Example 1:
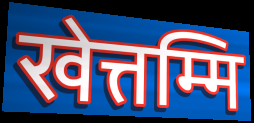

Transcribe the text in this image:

खेत्तम्मि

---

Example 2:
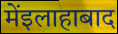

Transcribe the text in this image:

मेंइलाहाबाद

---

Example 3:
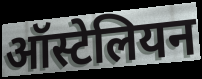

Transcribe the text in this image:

ऑस्टेलियन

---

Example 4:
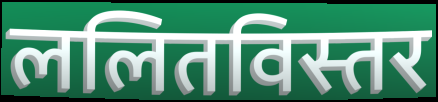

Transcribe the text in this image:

ललितविस्तर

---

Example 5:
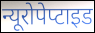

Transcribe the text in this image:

न्यूरोपेप्टाइड